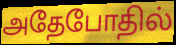
அதேபோதில்